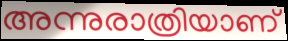
അന്നുരാത്രിയാണ്